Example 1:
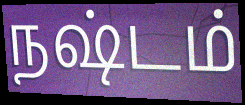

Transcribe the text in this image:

நஷ்டம்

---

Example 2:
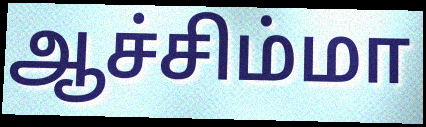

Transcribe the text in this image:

ஆச்சிம்மா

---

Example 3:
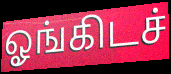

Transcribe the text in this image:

ஓங்கிடச்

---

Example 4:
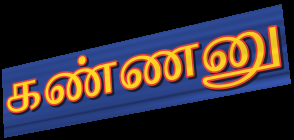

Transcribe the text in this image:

கண்ணனு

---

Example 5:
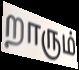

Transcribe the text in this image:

றாரும்